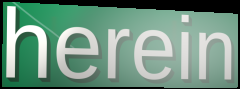
herein